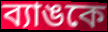
ব্যাঙকে